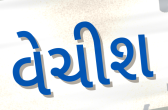
વેચીશ